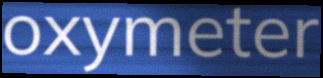
oxymeter